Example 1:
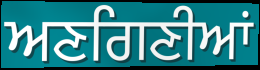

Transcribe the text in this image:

ਅਣਗਿਣੀਆਂ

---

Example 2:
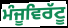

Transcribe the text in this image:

ਮੰਜੂਵਿਰੱਟੂ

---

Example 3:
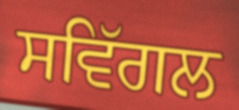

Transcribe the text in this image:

ਸਵਿੱਗਲ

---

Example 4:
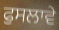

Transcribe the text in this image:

ਫੁਸਲਾਵੇ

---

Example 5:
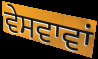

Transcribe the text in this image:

ਵੇਸਵਾਵਾਂ